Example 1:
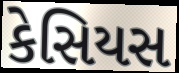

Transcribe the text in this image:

કેસિયસ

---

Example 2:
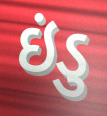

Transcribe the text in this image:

ઇંડુ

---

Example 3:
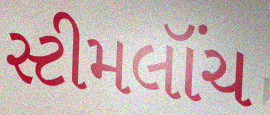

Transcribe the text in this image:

સ્ટીમલૉંચ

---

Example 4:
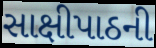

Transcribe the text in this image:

સાક્ષીપાઠની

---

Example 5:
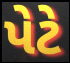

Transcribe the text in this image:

પેટે